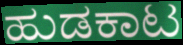
ಹುಡಕಾಟ